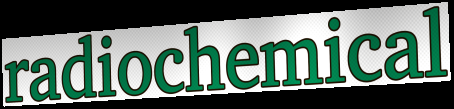
radiochemical